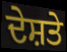
ਦੇਸ਼ਤੇ